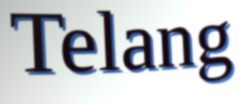
Telang